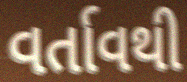
વર્તાવથી